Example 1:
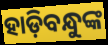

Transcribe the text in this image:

ହାଡ଼ିବନ୍ଧୁଙ୍କ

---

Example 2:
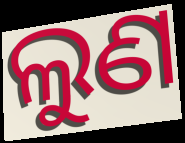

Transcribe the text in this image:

ଲୁଣ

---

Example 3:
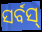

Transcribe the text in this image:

ସର୍ବସ୍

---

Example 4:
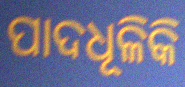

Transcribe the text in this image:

ପାଦଧୂଳିକି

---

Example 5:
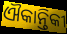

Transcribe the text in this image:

ଐକାନ୍ତିକୀ